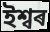
ইশ্বৰ